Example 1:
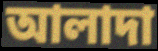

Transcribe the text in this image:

আলাদা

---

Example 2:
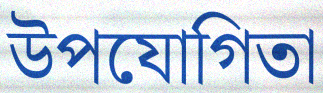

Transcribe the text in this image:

উপযোগিতা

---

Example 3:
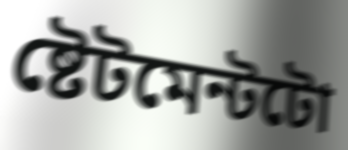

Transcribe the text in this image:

ষ্টেটমেন্টটো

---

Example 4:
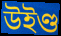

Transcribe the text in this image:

উইণ্ড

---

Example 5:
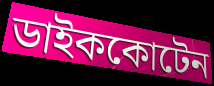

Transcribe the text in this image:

ডাইককোটেন